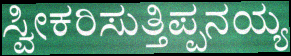
ಸ್ವೀಕರಿಸುತ್ತಿಪ್ಪನಯ್ಯ